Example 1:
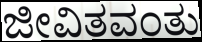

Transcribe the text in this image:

ಜೀವಿತವಂತು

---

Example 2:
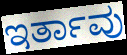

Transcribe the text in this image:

ಇರ್ತಾವು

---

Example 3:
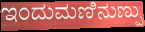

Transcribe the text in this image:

ಇಂದುಮಣಿನುಣ್ಪು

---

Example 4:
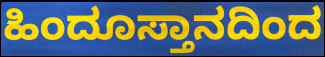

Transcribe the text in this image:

ಹಿಂದೂಸ್ತಾನದಿಂದ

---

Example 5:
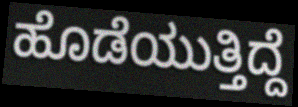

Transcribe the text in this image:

ಹೊಡೆಯುತ್ತಿದ್ದೆ